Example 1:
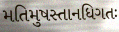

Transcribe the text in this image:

મતિમુષસ્તાનધિગતઃ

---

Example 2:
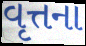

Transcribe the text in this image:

વૃત્તના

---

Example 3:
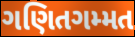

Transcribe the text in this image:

ગણિતગમ્મત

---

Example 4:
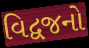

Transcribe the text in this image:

વિદ્વજનો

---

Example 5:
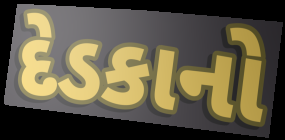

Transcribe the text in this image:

દેડકાનો